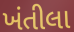
ખંતીલા